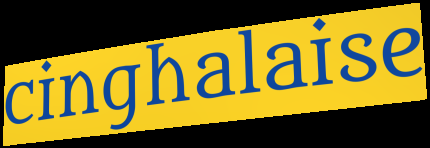
cinghalaise